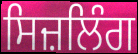
ਸਿਜ਼ਲਿੰਗ